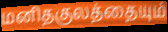
மனிதகுலத்தையும்